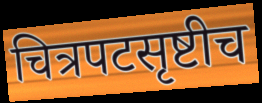
चित्रपटसृष्टीच